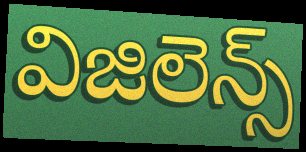
విజిలెన్స్